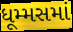
ધૂમ્મસમાં